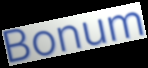
Bonum